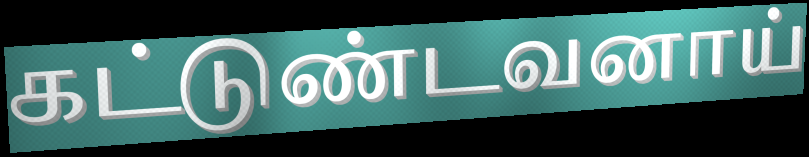
கட்டுண்டவனாய்